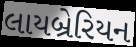
લાયબ્રેરિયન